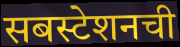
सबस्टेशनची